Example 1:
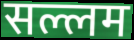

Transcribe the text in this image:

सल्लम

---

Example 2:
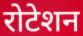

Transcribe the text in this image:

रोटेशन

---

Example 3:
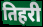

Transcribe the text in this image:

तिहरी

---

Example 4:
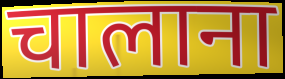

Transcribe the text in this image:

चालाना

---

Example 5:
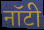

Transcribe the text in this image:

नॉटी